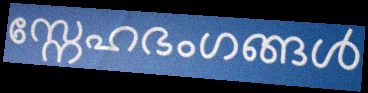
സ്നേഹഭംഗങ്ങൾ